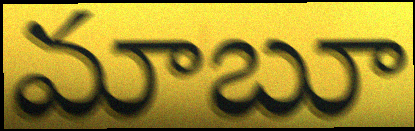
మాబూ